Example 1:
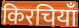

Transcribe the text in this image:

किरचियाँ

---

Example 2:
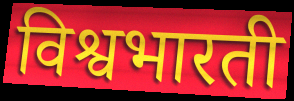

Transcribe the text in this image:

विश्वभारती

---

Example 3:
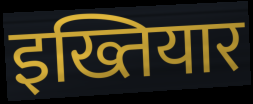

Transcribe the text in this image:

इख्तियार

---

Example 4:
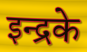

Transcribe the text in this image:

इन्द्रके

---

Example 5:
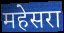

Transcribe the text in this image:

महेसरा